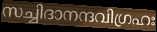
സച്ചിദാനന്ദവിഗ്രഹഃ